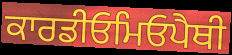
ਕਾਰਡੀਓਮਿਓਪੈਥੀ